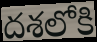
దశలోకి